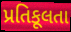
પ્રતિકૂલતા